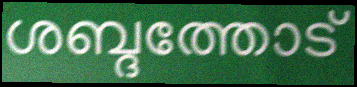
ശബ്ദത്തോട്